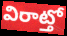
విరాట్తో